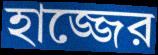
হাজ্জের